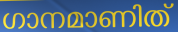
ഗാനമാണിത്